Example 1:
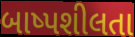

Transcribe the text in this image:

બાષ્પશીલતા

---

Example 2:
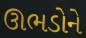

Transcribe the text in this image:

ઊભડોને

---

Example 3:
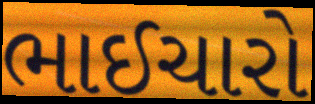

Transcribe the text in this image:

ભાઈચારો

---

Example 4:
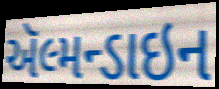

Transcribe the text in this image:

ઍલ્મન્ડાઇન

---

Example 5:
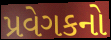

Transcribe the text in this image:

પ્રવેગકનો